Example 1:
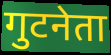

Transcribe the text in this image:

गुटनेता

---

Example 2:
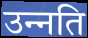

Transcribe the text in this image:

उन्‍नति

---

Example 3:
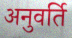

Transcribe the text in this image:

अनुवर्ति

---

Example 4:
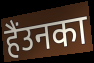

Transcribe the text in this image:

हैंउनका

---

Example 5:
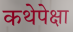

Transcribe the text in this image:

कथेपेक्षा